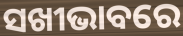
ସଖୀଭାବରେ